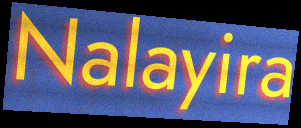
Nalayira